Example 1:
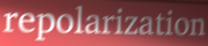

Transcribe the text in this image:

repolarization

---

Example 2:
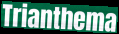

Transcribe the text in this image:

Trianthema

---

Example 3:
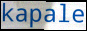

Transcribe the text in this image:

kapale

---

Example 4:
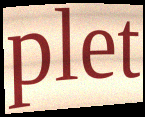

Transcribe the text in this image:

plet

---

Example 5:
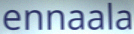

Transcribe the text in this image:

ennaala